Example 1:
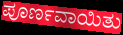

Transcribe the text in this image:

ಪೂರ್ಣವಾಯಿತು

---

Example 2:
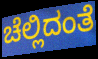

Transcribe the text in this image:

ಚೆಲ್ಲಿದಂತೆ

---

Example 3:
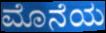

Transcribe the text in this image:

ಮೊನೆಯ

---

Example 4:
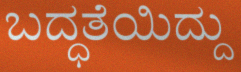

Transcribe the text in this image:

ಬದ್ಧತೆಯಿದ್ದು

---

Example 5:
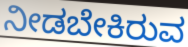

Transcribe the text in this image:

ನೀಡಬೇಕಿರುವ